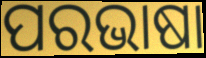
ପରଭାଷା